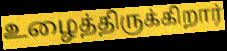
உழைத்திருக்கிறார்